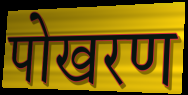
पोखरण